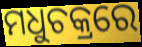
ମଧୁଚକ୍ରରେ